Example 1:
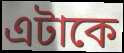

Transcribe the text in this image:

এটাকে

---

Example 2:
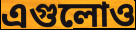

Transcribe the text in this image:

এগুলোও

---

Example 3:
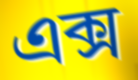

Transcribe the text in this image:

এক্স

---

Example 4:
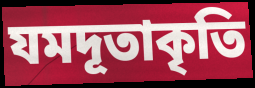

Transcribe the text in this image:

যমদূতাকৃতি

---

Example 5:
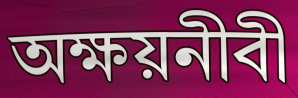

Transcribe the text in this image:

অক্ষয়নীবী